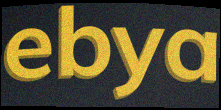
ebya